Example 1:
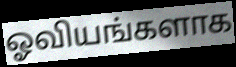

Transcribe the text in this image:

ஓவியங்களாக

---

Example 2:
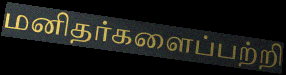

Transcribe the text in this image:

மனிதர்களைப்பற்றி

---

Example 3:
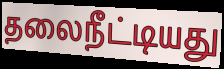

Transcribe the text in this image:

தலைநீட்டியது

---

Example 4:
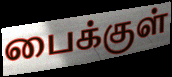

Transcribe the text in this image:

பைக்குள்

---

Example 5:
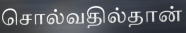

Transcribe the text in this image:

சொல்வதில்தான்